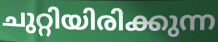
ചുറ്റിയിരിക്കുന്ന